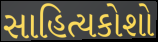
સાહિત્યકોશો